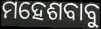
ମହେଶବାବୁ